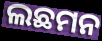
ଲଛମନ